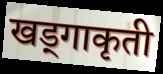
खड्गाकृती